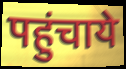
पहुंचाये